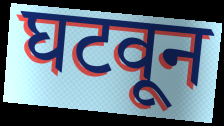
घटवून